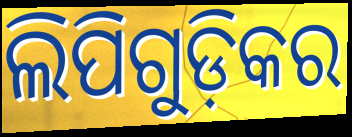
ଲିପିଗୁଡ଼ିକର